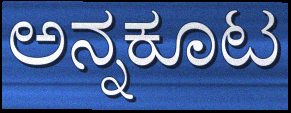
ಅನ್ನಕೂಟ